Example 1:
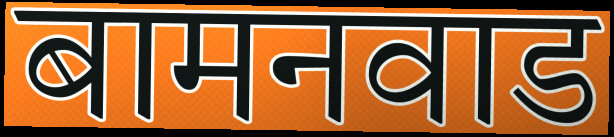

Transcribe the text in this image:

बामनवाड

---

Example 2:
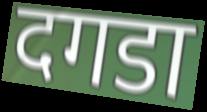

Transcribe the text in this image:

दगडा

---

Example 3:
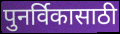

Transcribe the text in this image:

पुनर्विकासाठी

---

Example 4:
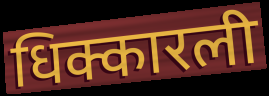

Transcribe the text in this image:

धिक्कारली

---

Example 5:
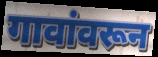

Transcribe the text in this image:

गावांवरून